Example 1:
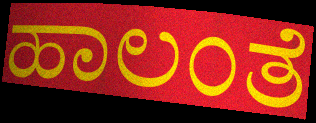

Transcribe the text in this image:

ಹಾಲಂತೆ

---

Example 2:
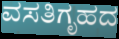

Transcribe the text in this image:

ವಸತಿಗೃಹದ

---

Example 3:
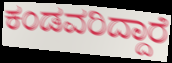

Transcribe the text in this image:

ಕಂಡವರಿದ್ದಾರೆ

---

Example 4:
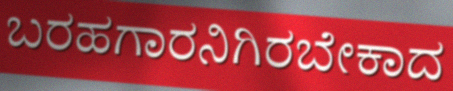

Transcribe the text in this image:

ಬರಹಗಾರನಿಗಿರಬೇಕಾದ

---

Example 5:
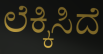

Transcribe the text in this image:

ಲೆಕ್ಕಿಸಿದೆ